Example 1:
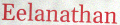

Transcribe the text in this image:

Eelanathan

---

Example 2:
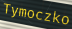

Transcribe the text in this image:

Tymoczko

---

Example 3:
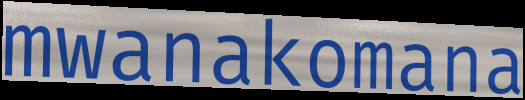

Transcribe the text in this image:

mwanakomana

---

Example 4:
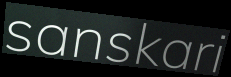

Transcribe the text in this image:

sanskari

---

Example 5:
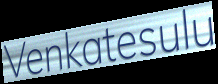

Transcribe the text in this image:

Venkatesulu